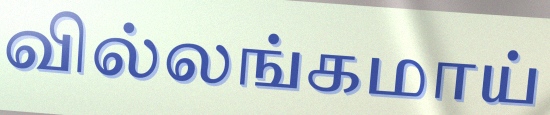
வில்லங்கமாய்